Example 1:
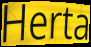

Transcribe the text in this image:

Herta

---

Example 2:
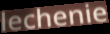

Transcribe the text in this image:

lechenie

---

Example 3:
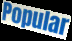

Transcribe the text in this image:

Popular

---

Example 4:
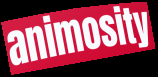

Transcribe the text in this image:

animosity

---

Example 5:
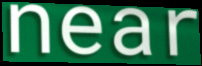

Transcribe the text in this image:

near